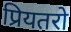
प्रियतरो